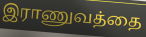
இராணுவத்தை